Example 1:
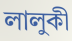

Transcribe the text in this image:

লালুকী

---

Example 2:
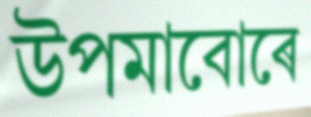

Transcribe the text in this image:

উপমাবোৰে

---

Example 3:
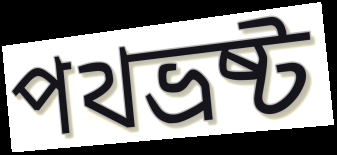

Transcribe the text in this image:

পথভ্ৰষ্ট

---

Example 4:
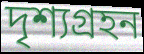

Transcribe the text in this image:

দৃশ্যগ্ৰহন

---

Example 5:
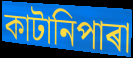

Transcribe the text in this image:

কাটানিপাৰা